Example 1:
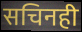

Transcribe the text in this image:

सचिनही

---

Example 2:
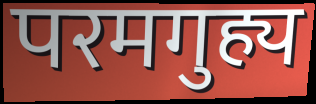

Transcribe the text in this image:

परमगुह्य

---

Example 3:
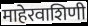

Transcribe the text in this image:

माहेरवाशिणी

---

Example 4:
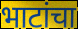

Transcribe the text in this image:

भाटांचा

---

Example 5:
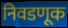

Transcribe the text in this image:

निवडणूक